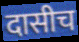
दासीच